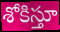
శోకిస్తూ